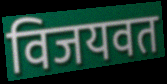
विजयवत